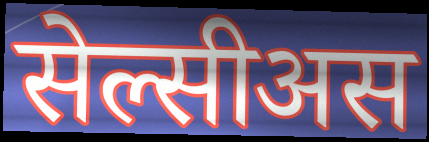
सेल्सीअस